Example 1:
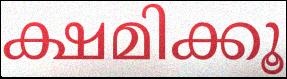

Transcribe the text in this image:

ക്ഷമിക്കൂ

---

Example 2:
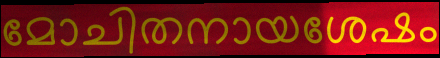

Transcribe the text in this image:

മോചിതനായശേഷം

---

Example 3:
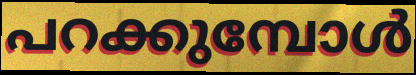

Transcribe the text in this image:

പറക്കുമ്പോൾ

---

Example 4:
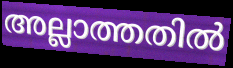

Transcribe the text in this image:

അല്ലാത്തതിൽ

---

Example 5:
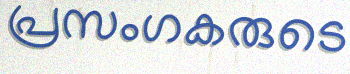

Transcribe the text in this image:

പ്രസംഗകരുടെ